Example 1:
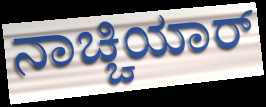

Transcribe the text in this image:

ನಾಚ್ಚಿಯಾರ್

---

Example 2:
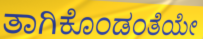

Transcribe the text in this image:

ತಾಗಿಕೊಂಡಂತೆಯೇ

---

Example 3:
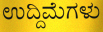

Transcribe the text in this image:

ಉದ್ದಿಮೆಗಳು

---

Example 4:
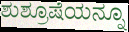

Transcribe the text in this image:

ಶುಶ್ರೂಷೆಯನ್ನೂ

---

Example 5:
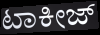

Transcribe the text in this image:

ಟಾಕೀಜ್